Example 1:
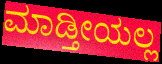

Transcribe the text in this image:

ಮಾಡ್ತೀಯಲ್ಲ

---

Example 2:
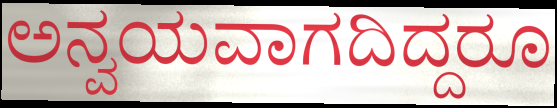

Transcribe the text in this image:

ಅನ್ವಯವಾಗದಿದ್ದರೂ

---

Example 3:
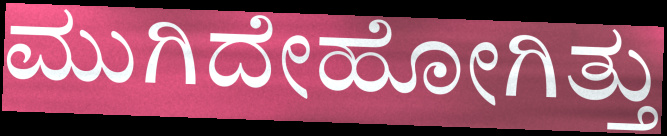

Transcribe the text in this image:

ಮುಗಿದೇಹೋಗಿತ್ತು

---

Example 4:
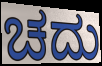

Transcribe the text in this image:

ಚದು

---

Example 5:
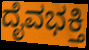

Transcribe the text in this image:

ದೈವಭಕ್ತಿ